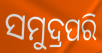
ସମୁଦ୍ରପରି